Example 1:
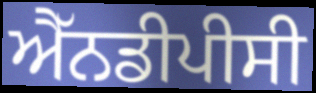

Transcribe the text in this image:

ਐੱਨਡੀਪੀਸੀ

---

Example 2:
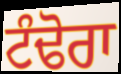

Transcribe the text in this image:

ਟੰਢੋਰਾ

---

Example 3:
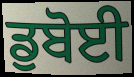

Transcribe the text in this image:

ਡੁਬੋਈ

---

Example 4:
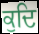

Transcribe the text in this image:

ਕੁਦਿ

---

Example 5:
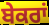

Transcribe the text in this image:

ਬੇਕਰਾਂ